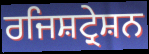
ਰਜਿਸ਼ਟ੍ਰੇਸ਼ਨ